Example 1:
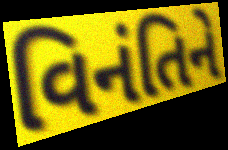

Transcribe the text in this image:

વિનંતિને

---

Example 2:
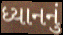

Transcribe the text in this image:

ધ્યાનનું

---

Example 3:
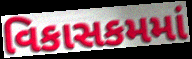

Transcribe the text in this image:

વિકાસકમમાં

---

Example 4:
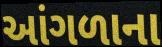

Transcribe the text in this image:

આંગળાના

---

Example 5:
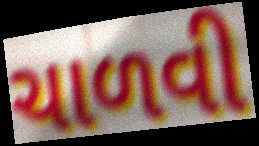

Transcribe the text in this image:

ચાળવી